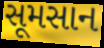
સૂમસાન